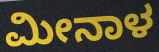
ಮೀನಾಳ